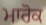
ਮਾਰੋਕ